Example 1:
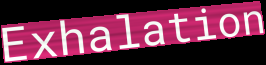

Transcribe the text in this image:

Exhalation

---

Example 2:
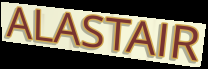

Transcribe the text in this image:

ALASTAIR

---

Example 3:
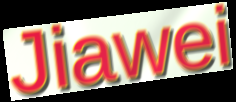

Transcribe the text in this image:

Jiawei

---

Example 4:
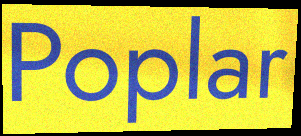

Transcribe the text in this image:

Poplar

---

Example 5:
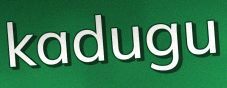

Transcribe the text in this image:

kadugu